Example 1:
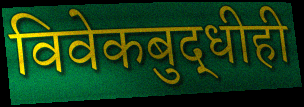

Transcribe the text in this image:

विवेकबुद्धीही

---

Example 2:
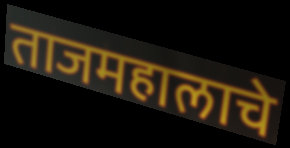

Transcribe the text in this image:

ताजमहालाचे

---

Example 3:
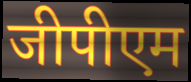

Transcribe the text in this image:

जीपीएम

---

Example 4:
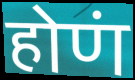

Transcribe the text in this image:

होणं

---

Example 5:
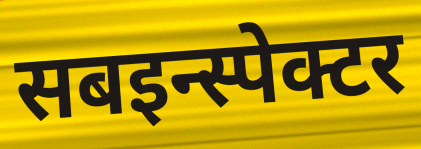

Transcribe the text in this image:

सबइन्स्पेक्टर